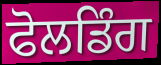
ਫੋਲਡਿੰਗ